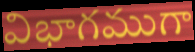
విభాగముగా